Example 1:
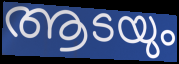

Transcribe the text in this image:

ആടയും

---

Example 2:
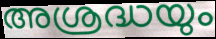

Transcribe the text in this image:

അശ്രദ്ധയും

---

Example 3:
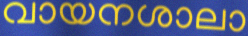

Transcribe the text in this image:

വായനശാലാ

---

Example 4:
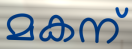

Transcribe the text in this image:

മകന്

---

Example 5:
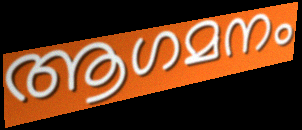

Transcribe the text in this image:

ആഗമനം